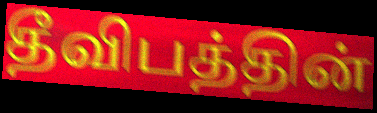
தீவிபத்தின்